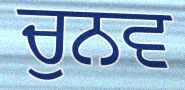
ਚੁਨਵ